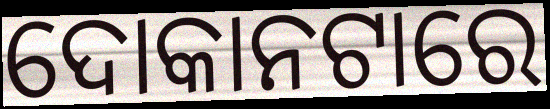
ଦୋକାନଟାରେ